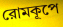
রোমকূপে